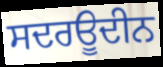
ਸਦਰਊਦੀਨ